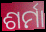
ଶର୍ମା